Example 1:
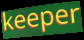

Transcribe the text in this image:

keeper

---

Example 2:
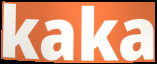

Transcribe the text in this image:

kaka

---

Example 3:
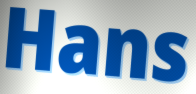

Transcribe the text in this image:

Hans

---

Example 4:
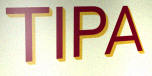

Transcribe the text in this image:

TIPA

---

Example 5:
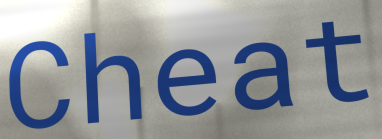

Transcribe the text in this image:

Cheat